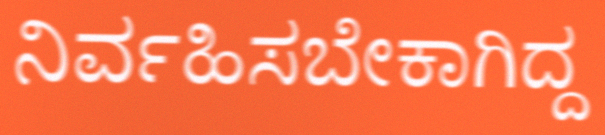
ನಿರ್ವಹಿಸಬೇಕಾಗಿದ್ದ